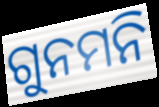
ଗୁନମନି